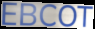
EBCOT